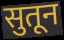
सुतून